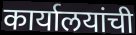
कार्यालयांची